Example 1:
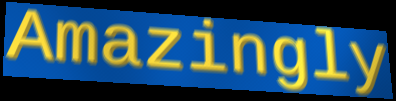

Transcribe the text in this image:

Amazingly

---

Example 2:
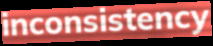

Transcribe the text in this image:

inconsistency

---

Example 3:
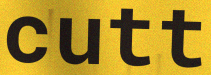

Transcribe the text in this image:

cutt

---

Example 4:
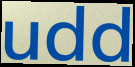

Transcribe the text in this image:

udd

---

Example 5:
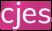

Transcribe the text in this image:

cjes